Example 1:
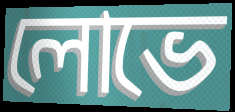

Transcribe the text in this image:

লোভে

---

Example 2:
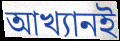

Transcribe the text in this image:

আখ্যানই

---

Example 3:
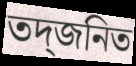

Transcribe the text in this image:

তদ্জনিত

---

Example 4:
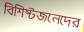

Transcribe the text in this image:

বিশিষ্টজনেদের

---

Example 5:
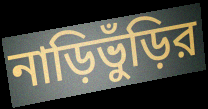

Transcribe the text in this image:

নাড়িভুঁড়ির